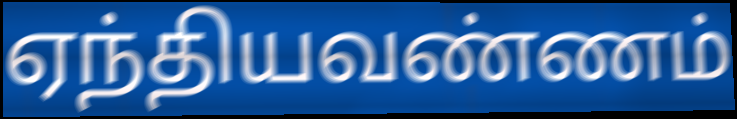
ஏந்தியவண்ணம்